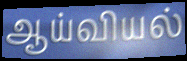
ஆய்வியல்